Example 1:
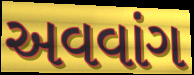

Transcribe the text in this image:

અવવાંગ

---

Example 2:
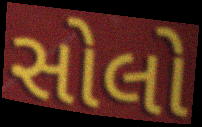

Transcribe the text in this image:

સોલો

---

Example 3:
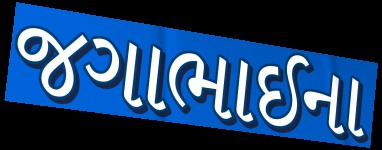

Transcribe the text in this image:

જગાભાઈના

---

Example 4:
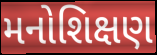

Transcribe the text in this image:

મનોશિક્ષણ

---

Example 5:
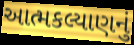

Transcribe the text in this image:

આત્મકલ્યાણનું